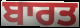
ਬਾਰਤ